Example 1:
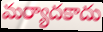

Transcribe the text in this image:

మర్యాదకాదు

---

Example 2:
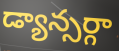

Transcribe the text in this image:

డ్యాన్సర్గా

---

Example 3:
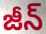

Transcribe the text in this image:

జీన్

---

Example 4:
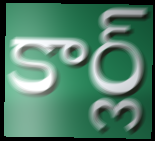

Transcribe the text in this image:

కార్ల్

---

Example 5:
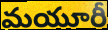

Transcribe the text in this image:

మయూరీ